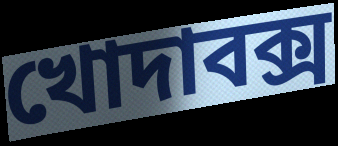
খোদাবক্স